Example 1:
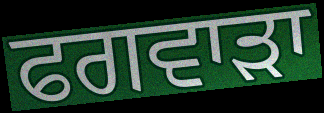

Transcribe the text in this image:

ਫਗਵਾੜਾ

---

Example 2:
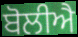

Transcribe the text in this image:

ਬੋਲੀਐ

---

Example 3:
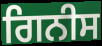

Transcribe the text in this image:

ਗਿਨੀਸ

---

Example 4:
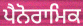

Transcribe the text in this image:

ਪੈਨੋਰਾਮਿਕ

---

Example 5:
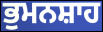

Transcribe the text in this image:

ਭੁਮਨਸ਼ਾਹ